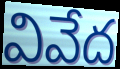
వివేద